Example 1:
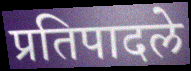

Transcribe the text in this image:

प्रतिपादले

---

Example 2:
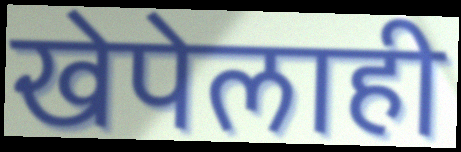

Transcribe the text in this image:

खेपेलाही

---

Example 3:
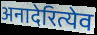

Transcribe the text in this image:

अनादेरित्येव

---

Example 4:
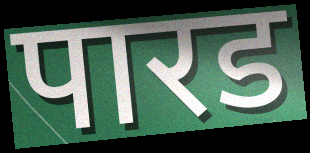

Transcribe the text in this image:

पारड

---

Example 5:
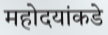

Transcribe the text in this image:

महोदयांकडे